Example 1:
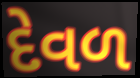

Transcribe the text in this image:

દેવળ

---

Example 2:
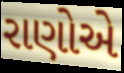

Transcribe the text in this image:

રાણોએ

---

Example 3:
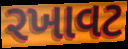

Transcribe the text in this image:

રખાવટ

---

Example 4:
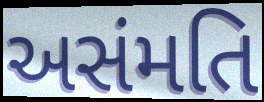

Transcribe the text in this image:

અસંમતિ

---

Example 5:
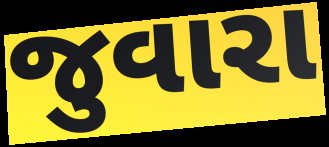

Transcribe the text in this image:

જુવારા